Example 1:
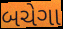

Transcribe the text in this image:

બચેગા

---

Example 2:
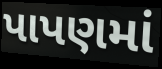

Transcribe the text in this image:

પાપણમાં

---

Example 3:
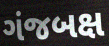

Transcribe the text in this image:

ગંજબક્ષ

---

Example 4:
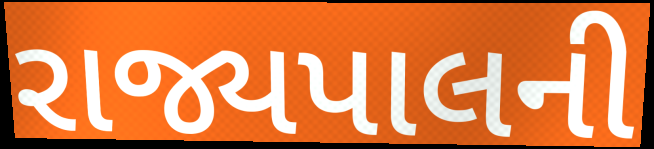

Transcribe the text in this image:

રાજ્યપાલની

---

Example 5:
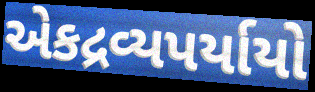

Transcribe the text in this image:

એકદ્રવ્યપર્યાયો